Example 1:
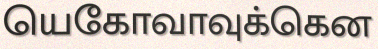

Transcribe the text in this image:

யெகோவாவுக்கென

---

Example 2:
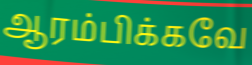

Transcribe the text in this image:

ஆரம்பிக்கவே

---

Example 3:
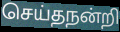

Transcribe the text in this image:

செய்தநன்றி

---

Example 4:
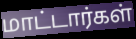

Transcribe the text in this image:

மாட்டார்கள்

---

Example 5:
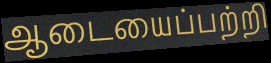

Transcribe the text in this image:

ஆடையைப்பற்றி